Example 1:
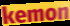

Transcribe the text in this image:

kemon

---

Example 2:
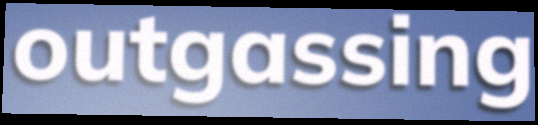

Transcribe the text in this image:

outgassing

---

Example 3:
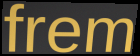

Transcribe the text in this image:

frem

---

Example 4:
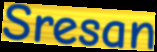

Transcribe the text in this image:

Sresan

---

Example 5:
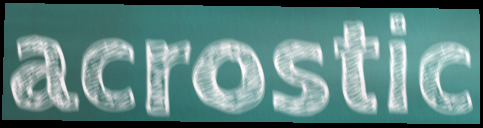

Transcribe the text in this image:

acrostic